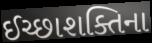
ઈચ્છાશક્તિના